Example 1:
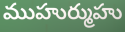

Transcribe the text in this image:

ముహుర్ముహు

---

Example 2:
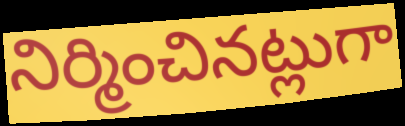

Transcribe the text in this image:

నిర్మించినట్లుగా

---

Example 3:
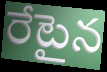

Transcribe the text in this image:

రేటైన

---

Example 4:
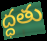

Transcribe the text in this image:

ద్ధతు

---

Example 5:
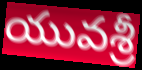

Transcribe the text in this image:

యువశ్రీ